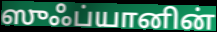
ஸுஃப்யானின்